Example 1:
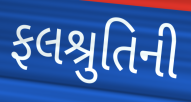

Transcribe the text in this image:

ફલશ્રુતિની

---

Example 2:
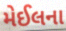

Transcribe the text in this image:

મેઈલના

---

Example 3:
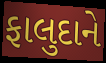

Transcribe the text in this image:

ફાલુદાને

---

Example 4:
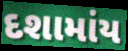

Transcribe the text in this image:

દશામાંય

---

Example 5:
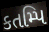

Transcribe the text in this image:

કતમ્પિ